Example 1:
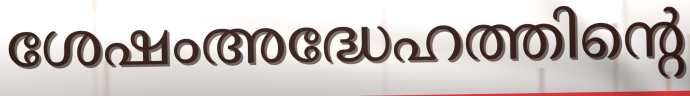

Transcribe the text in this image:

ശേഷംഅദ്ധേഹത്തിന്റെ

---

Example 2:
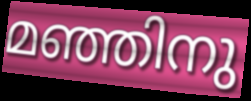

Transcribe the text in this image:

മഞ്ഞിനു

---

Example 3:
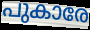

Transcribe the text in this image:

പുകാരേ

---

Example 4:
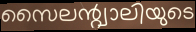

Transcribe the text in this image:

സൈലന്റ്വാലിയുടെ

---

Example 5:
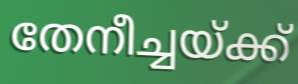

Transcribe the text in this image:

തേനീച്ചയ്ക്ക്